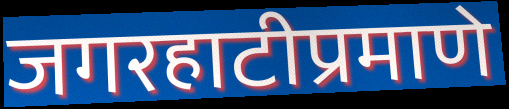
जगरहाटीप्रमाणे